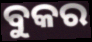
ବୁକର